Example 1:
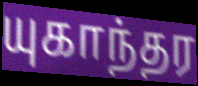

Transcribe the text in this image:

யுகாந்தர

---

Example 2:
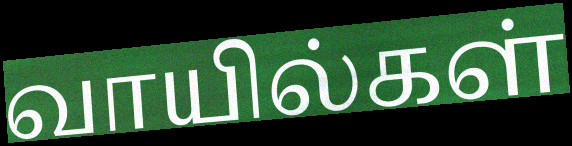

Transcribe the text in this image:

வாயில்கள்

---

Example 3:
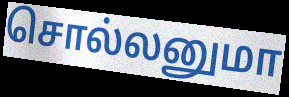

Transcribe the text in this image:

சொல்லனுமா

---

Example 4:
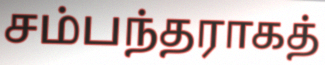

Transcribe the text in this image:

சம்பந்தராகத்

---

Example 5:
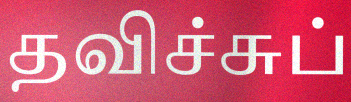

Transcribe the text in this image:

தவிச்சுப்